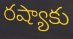
రష్యాకు